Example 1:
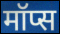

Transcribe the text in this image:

मॉप्स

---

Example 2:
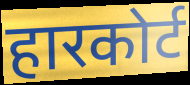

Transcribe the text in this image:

हारकोर्ट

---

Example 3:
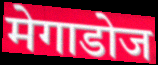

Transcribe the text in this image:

मेगाडोज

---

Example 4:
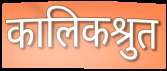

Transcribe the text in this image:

कालिकश्रुत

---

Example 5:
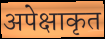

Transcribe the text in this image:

अपेक्षाकृत